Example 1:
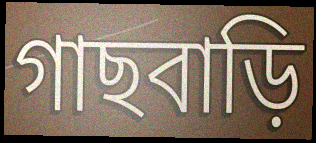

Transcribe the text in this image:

গাছবাড়ি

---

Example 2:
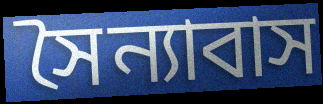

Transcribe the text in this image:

সৈন্যাবাস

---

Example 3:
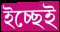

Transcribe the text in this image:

ইচ্ছেই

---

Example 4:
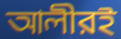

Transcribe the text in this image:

আলীরই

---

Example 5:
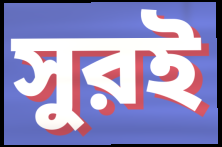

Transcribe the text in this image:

সুরই